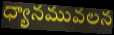
ధ్యానమువలన